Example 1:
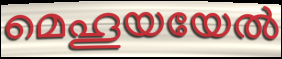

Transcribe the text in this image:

മെഹൂയയേൽ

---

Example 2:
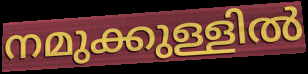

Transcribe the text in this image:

നമുക്കുള്ളിൽ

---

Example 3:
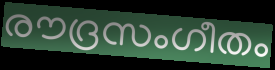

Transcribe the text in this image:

രൗദ്രസംഗീതം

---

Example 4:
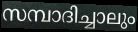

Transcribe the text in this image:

സമ്പാദിച്ചാലും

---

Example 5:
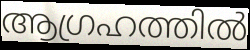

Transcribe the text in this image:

ആഗ്രഹത്തിൽ